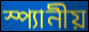
স্প্যানীয়